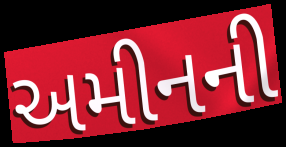
અમીનની